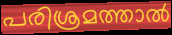
പരിശ്രമത്താൽ